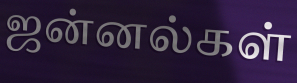
ஜன்னல்கள்